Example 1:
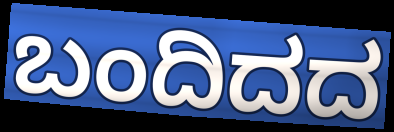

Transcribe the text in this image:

ಬಂದಿದದ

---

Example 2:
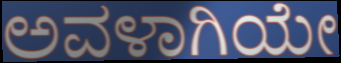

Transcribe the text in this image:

ಅವಳಾಗಿಯೇ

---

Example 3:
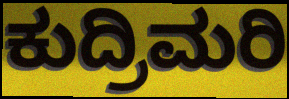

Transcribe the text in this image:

ಕುದ್ರಿಮರಿ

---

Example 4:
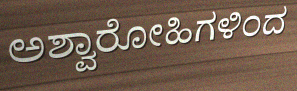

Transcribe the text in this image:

ಅಶ್ವಾರೋಹಿಗಳಿಂದ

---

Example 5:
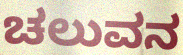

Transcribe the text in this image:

ಚಲುವನ